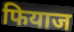
फियाज